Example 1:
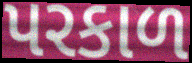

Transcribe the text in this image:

પરકાળ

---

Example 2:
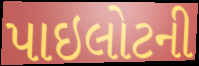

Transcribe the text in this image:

પાઇલોટની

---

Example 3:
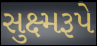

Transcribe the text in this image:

સુક્ષ્મરૂપે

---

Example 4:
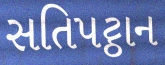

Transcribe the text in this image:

સતિપટ્ઠાન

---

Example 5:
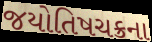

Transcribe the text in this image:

જયોતિષચક્રના